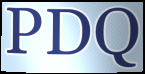
PDQ